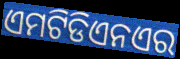
ଏମଟିଡିଏନଏର